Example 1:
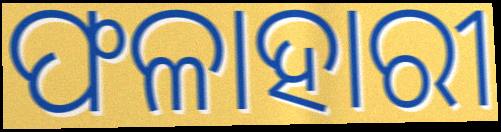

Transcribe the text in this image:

ଫଳାହାରୀ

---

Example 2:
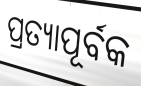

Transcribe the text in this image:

ପ୍ରତ୍ୟାପୂର୍ବକ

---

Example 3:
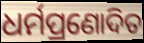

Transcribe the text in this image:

ଧର୍ମପ୍ରଣୋଦିତ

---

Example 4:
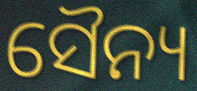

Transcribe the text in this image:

ସୈନ୍ୟ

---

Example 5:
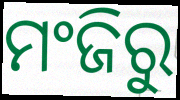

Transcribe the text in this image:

ମଂଜିରୁ